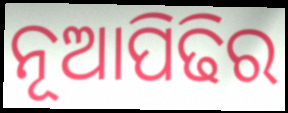
ନୂଆପିଢିର